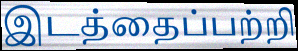
இடத்தைப்பற்றி